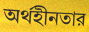
অর্থহীনতার